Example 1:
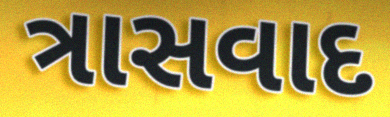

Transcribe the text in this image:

ત્રાસવાદ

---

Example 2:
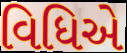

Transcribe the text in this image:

વિધિએ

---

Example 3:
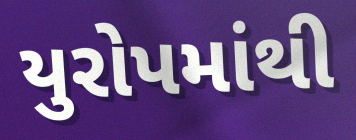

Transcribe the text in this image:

યુરોપમાંથી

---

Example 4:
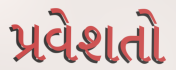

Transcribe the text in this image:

પ્રવેશતો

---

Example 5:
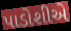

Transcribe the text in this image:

પાડોશીએ